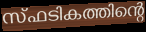
സ്ഫടികത്തിന്റെ